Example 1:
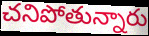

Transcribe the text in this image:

చనిపోతున్నారు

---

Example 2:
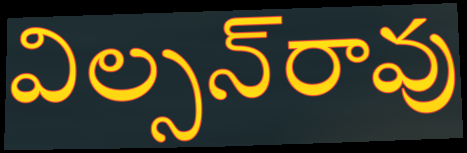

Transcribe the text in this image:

విల్సన్‌రావు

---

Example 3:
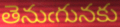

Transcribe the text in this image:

తెనుఁగునకు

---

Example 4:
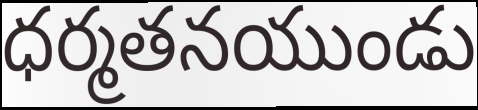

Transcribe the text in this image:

ధర్మతనయుండు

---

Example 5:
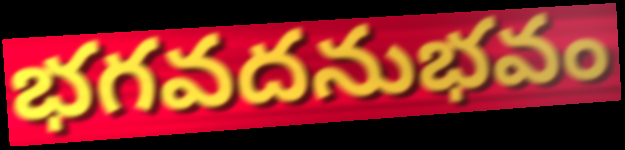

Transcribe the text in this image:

భగవదనుభవం